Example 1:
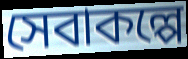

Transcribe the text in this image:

সেবাকল্পে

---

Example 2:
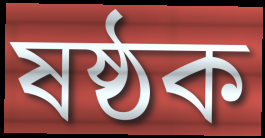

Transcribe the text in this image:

ষষ্ঠক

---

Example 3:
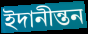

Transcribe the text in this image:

ইদানীন্তন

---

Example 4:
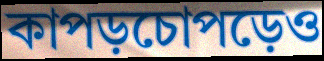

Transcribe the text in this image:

কাপড়চোপড়েও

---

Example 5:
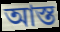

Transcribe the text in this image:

আস্ত